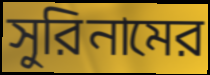
সুরিনামের